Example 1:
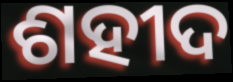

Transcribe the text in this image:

ଶହୀଦ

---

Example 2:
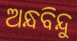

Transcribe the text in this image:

ଅନ୍ଧବିନ୍ଦୁ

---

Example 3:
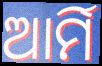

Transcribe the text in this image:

ଆର୍ମି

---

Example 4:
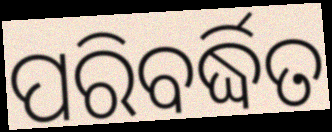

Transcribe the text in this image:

ପରିବର୍ଦ୍ଧିତ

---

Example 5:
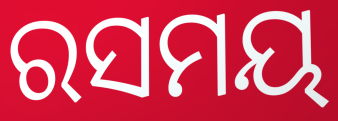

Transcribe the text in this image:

ରସମୟ